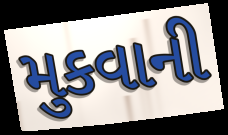
મુકવાની